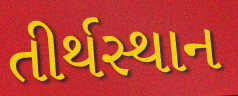
તીર્થસ્થાન